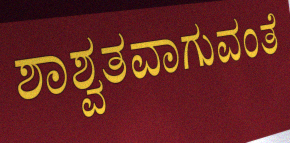
ಶಾಶ್ವತವಾಗುವಂತೆ